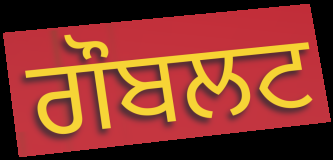
ਗੌਬਲਟ